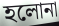
হলোনা